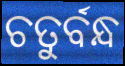
ଚତୁର୍ବନ୍ଧ